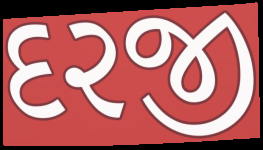
દરજી